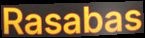
Rasabas